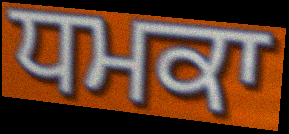
ਧਮਕਾ